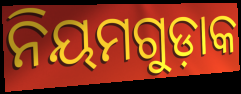
ନିୟମଗୁଡ଼ାକ